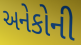
અનેકોની